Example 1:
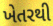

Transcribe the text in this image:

ખેતરથી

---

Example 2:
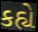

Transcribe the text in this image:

કહ્યે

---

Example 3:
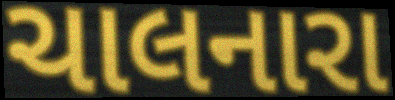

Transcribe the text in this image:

ચાલનારા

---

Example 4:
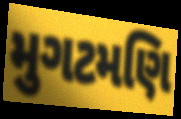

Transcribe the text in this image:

મુગટમણિ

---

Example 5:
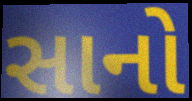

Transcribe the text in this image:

સાનો